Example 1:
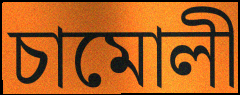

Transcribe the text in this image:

চামোলী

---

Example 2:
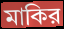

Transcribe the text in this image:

মাকির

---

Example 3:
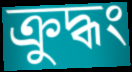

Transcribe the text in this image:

ক্রুদ্ধং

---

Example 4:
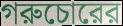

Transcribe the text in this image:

গরুচোরের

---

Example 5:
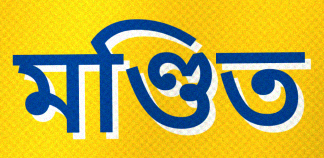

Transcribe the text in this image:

মণ্ডিত